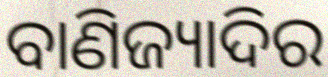
ବାଣିଜ୍ୟାଦିର